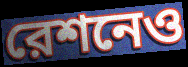
রেশনেও